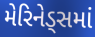
મેરિનેડ્સમાં